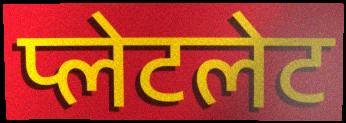
प्लेटलेट